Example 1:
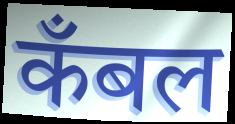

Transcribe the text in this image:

कँबल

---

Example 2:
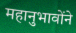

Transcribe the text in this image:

महानुभावोंने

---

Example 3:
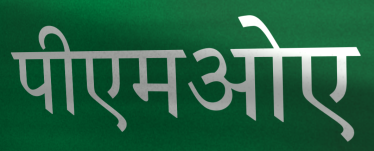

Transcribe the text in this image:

पीएमओए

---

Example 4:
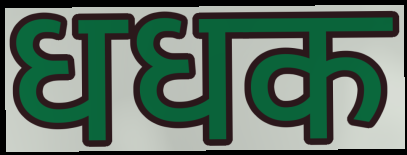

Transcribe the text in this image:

धधक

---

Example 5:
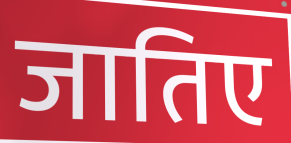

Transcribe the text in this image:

जातिए